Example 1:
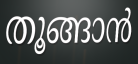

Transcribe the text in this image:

തൂങ്ങാൻ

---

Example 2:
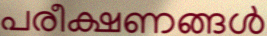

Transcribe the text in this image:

പരീക്ഷണങ്ങൾ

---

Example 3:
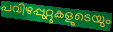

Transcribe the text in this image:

പവിഴപ്പുറ്റുകളുടെയും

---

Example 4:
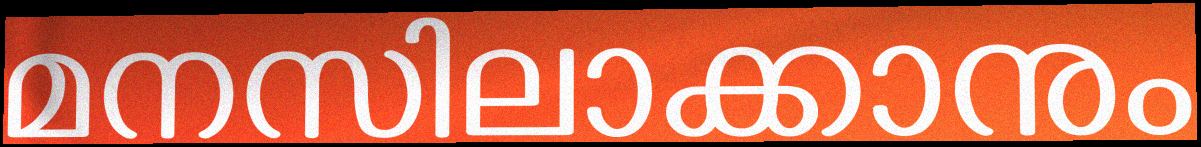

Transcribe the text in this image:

മനസിലാക്കാനും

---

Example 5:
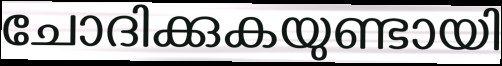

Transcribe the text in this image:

ചോദിക്കുകയുണ്ടായി